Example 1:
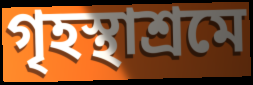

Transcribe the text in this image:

গৃহস্থাশ্রমে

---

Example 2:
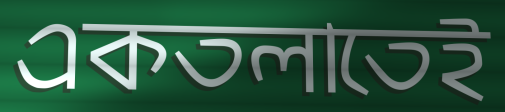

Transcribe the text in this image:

একতলাতেই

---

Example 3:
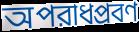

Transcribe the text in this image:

অপরাধপ্রবণ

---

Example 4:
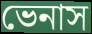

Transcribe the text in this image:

ভেনাস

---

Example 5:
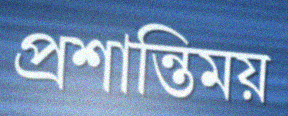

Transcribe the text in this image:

প্রশান্তিময়